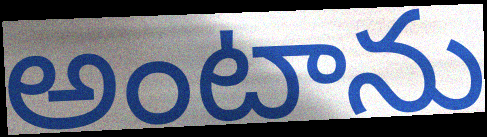
అంటాను